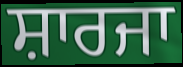
ਸ਼ਾਰਜਾ